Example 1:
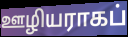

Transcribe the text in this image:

ஊழியராகப்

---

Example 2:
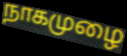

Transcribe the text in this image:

நாகமுழை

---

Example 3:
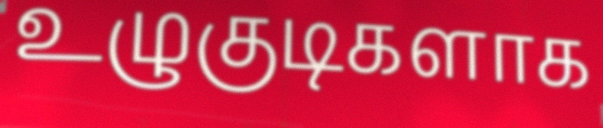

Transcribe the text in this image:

உழுகுடிகளாக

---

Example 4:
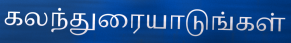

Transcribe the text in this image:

கலந்துரையாடுங்கள்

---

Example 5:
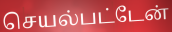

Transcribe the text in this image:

செயல்பட்டேன்